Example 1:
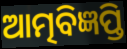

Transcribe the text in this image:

ଆତ୍ମବିଜ୍ଞପ୍ତି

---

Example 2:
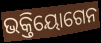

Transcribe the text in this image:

ଭକ୍ତିୟୋଗେନ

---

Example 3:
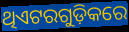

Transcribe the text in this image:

ଥିଏଟରଗୁଡ଼ିକରେ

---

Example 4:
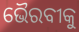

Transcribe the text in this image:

ଭୈରବୀକୁ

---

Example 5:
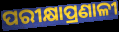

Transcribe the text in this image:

ପରୀକ୍ଷାପ୍ରଣାଳୀ